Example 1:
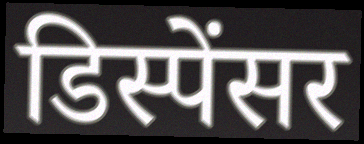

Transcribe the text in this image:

डिस्पेंसर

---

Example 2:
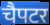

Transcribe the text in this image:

चैपटर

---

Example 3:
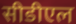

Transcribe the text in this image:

सीडीएल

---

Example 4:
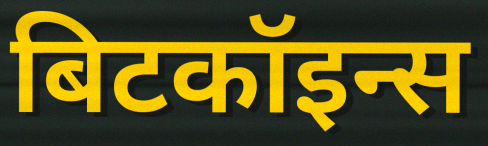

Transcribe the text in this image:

बिटकॉइन्स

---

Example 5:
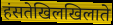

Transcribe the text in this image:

हंसतेखिलखिलाते